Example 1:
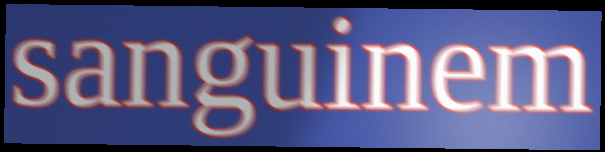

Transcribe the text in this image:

sanguinem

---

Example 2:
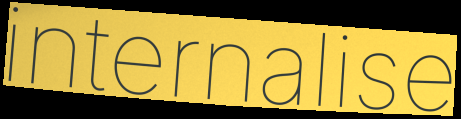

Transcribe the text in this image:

internalise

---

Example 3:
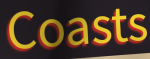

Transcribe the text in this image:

Coasts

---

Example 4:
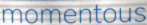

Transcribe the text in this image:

momentous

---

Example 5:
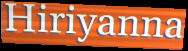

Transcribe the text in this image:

Hiriyanna